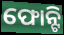
ଫୋନ୍ଟି